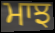
ਮਾਝ